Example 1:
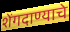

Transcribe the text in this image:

शेंगदाण्याचे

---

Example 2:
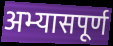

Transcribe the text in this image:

अभ्यासपूर्ण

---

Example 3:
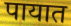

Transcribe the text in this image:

पायात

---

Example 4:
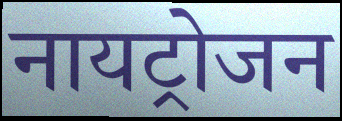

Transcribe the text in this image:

नायट्रोजन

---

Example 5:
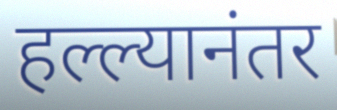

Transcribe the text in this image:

हल्ल्यानंतर